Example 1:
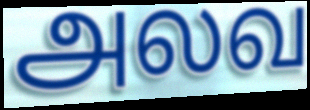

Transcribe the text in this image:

அலவ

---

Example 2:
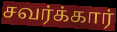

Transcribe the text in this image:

சவர்க்கார்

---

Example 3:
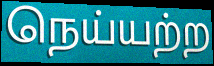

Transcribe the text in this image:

நெய்யற்ற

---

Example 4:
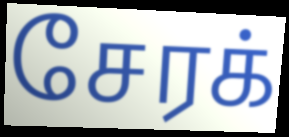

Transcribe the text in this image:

சேரக்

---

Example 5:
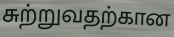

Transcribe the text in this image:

சுற்றுவதற்கான